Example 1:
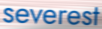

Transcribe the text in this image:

severest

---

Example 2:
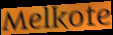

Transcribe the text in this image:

Melkote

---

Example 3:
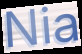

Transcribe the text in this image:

Nia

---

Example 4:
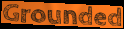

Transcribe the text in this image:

Grounded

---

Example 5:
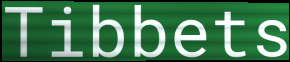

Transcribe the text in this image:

Tibbets